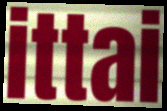
ittai